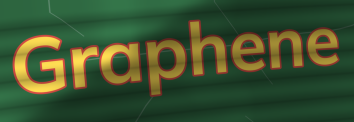
Graphene